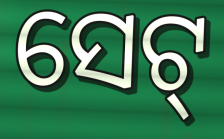
ସେଟ୍